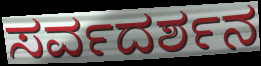
ಸರ್ವದರ್ಶನ